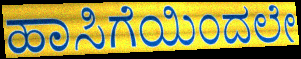
ಹಾಸಿಗೆಯಿಂದಲೇ